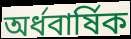
অর্ধবার্ষিক